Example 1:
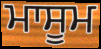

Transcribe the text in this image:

ਮਾਸੂਮ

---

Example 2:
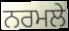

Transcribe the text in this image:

ਨਰਮਲੇ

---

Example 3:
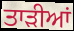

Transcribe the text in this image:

ਤਾੜੀਆਂ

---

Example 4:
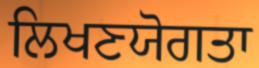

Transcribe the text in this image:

ਲਿਖਣਯੋਗਤਾ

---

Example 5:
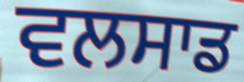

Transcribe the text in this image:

ਵਲਸਾਡ